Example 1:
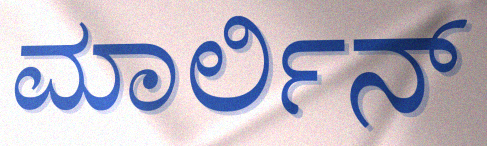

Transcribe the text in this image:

ಮಾರ್ಲಿನ್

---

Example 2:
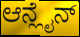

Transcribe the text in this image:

ಆನ್ಲೈನ್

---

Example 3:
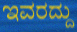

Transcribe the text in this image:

ಇವರದ್ದು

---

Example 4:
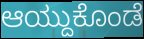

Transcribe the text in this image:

ಆಯ್ದುಕೊಂಡೆ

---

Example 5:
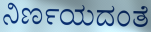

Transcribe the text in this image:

ನಿರ್ಣಯದಂತೆ